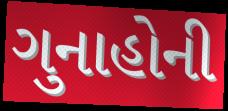
ગુનાહોની